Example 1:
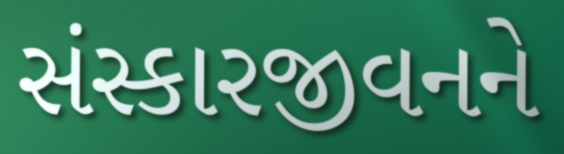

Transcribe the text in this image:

સંસ્કારજીવનને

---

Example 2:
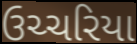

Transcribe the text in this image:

ઉચ્ચરિયા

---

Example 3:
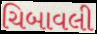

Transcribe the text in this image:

ચિબાવલી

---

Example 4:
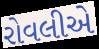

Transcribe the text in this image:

રોવલીએ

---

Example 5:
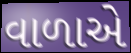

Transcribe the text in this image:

વાળાએ